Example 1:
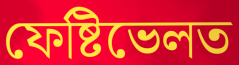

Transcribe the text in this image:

ফেষ্টিভেলত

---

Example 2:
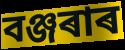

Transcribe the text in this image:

বঞ্জৰাৰ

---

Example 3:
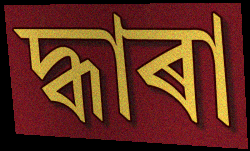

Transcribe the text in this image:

দ্ধাৰা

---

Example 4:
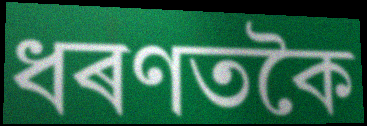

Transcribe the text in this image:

ধৰণতকৈ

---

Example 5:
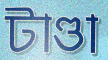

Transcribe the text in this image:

টাণ্ডা